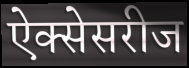
ऐक्सेसरीज